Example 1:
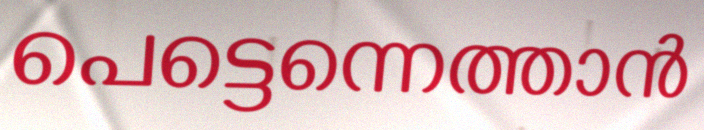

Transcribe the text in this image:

പെട്ടെന്നെത്താൻ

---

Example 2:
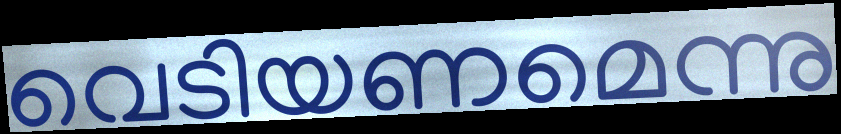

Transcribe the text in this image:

വെടിയണമെന്നു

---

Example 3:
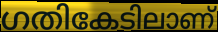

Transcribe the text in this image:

ഗതികേടിലാണ്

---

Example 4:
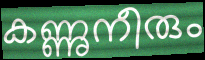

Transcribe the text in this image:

കണ്ണുനീരും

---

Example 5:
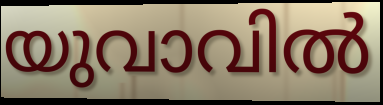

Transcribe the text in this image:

യുവാവിൽ